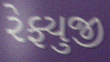
રેફ્યુજી